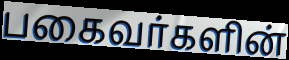
பகைவர்களின்